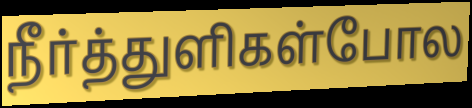
நீர்த்துளிகள்போல